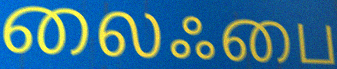
லைஃபை